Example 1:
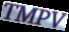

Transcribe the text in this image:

TMPV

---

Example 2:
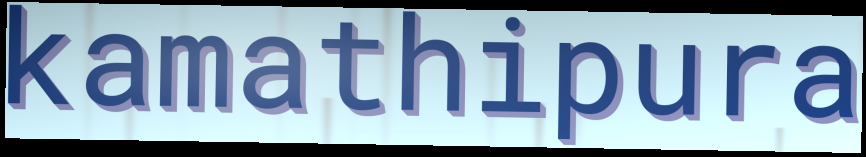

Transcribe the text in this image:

kamathipura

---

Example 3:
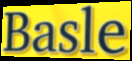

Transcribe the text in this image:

Basle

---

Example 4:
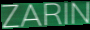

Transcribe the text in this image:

ZARIN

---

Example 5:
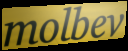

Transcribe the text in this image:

molbev